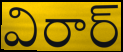
విరార్